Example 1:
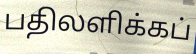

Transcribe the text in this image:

பதிலளிக்கப்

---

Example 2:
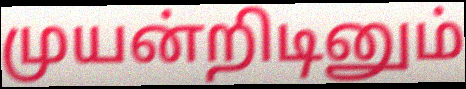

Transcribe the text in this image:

முயன்றிடினும்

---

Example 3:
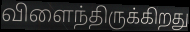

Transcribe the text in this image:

விளைந்திருக்கிறது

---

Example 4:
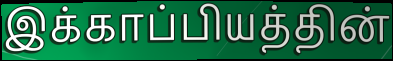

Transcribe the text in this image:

இக்காப்பியத்தின்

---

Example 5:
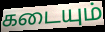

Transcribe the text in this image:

கடையும்